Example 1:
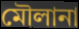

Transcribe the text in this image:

মৌলানা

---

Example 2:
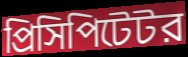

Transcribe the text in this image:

প্রিসিপিটেটর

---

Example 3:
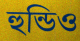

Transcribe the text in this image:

হুন্ডিও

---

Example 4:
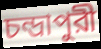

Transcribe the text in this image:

চন্দ্রাপুরী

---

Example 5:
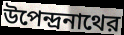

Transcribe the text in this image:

উপেন্দ্রনাথের